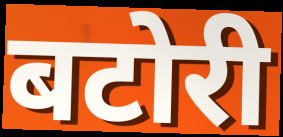
बटोरी